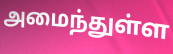
அமைந்துள்ள